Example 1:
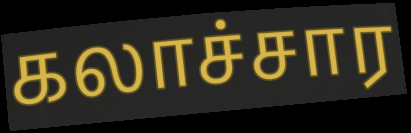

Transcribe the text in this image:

கலாச்சார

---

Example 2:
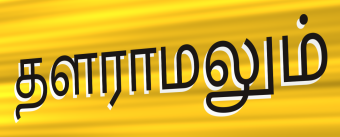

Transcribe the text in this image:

தளராமலும்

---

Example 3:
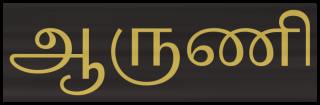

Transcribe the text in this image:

ஆருணி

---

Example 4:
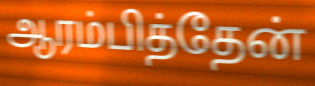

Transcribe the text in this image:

ஆரம்பித்தேன்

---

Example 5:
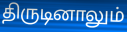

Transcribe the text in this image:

திருடினாலும்